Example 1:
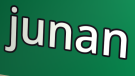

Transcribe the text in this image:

junan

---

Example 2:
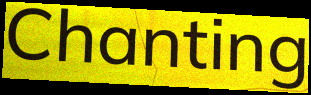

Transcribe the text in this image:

Chanting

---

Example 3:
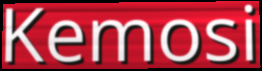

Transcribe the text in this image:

Kemosi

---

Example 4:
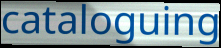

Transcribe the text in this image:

cataloguing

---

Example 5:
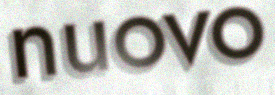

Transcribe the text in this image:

nuovo